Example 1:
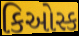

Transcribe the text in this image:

કિઓસ્ક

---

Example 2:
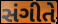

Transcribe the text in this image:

સંગીતે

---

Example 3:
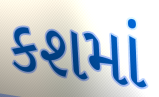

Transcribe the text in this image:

કશમાં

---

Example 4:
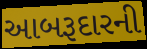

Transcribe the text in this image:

આબરૂદારની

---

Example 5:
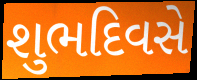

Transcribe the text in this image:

શુભદિવસે